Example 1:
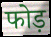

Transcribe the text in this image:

फोड़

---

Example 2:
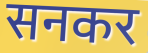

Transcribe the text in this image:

सनकर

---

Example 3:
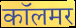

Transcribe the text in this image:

कॉलमर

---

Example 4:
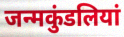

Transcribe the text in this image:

जन्मकुंडलियां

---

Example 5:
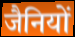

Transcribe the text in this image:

जैनियों